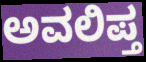
ಅವಲಿಪ್ತ